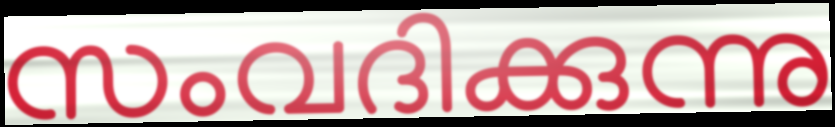
സംവദിക്കുന്നു